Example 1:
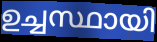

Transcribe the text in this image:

ഉച്ചസ്ഥായി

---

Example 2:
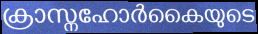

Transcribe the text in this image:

ക്രാസ്നഹോർകൈയുടെ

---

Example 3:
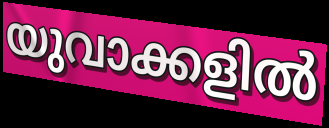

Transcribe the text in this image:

യുവാക്കളിൽ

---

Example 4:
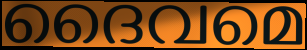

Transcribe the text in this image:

ദൈവമെ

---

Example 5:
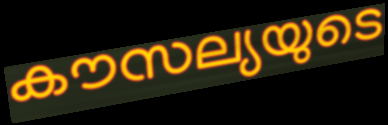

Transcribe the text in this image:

കൗസല്യയുടെ